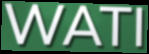
WATI